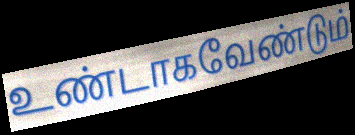
உண்டாகவேண்டும்